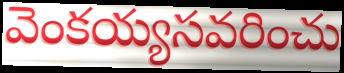
వెంకయ్యసవరించు